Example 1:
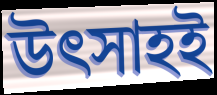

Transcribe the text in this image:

উৎসাহই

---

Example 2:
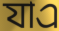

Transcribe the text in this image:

যাএ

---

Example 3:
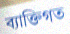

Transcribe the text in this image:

ব্যাক্তিগত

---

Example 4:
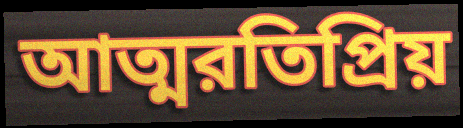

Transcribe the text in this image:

আত্মরতিপ্রিয়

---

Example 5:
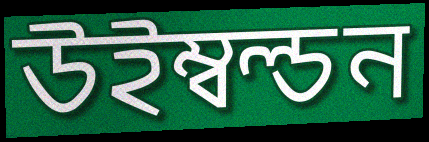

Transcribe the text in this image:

উইম্বল্ডন